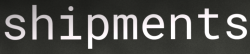
shipments